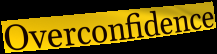
Overconfidence